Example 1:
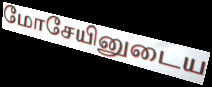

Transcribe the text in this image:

மோசேயினுடைய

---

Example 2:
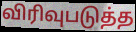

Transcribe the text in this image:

விரிவுபடுத்த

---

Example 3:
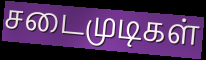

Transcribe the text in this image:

சடைமுடிகள்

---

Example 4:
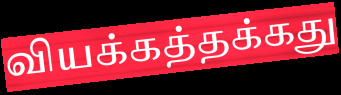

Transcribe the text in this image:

வியக்கத்தக்கது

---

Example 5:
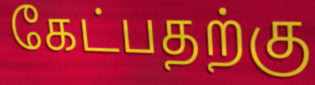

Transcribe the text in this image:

கேட்பதற்கு